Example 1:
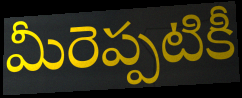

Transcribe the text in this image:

మీరెప్పటికీ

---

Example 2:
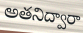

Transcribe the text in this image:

అతనిద్వారా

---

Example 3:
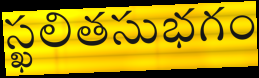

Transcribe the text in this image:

స్ఖలితసుభగం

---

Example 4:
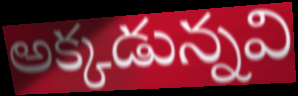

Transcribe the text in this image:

అక్కడున్నవి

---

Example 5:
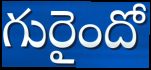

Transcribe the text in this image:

గురైందో